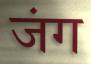
जंग